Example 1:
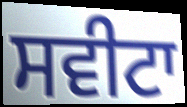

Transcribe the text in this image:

ਸਵੀਟਾ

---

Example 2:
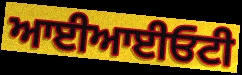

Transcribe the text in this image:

ਆਈਆਈਓਟੀ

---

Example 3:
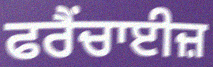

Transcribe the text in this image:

ਫਰੈਂਚਾਈਜ਼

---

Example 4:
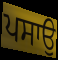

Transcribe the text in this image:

ਪਸਾਉ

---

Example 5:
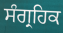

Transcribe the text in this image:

ਸੰਗ੍ਰਹਿਕ